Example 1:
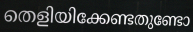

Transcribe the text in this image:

തെളിയിക്കേണ്ടതുണ്ടോ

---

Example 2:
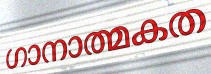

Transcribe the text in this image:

ഗാനാത്മകത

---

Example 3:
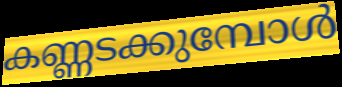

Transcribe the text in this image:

കണ്ണടക്കുമ്പോൾ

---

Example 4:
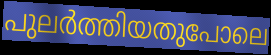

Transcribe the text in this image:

പുലർത്തിയതുപോലെ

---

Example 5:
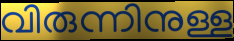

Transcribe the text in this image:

വിരുന്നിനുള്ള